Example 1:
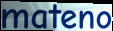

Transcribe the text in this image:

mateno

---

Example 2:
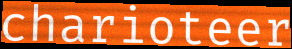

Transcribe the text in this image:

charioteer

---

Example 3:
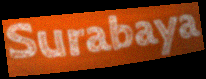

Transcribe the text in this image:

Surabaya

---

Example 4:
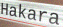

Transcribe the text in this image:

Hakara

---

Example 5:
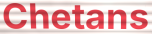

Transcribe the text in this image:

Chetans